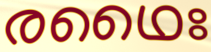
രഥൈഃ